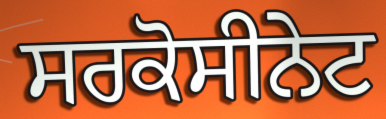
ਸਰਕੋਸੀਨੇਟ